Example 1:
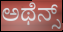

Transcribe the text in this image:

ಅಥೆನ್ಸ್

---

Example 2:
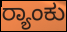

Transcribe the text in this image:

ರ್‍ಯಾಂಕು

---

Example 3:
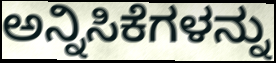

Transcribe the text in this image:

ಅನ್ನಿಸಿಕೆಗಳನ್ನು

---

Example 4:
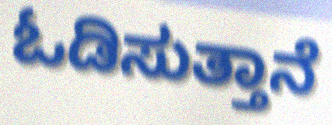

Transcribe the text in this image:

ಓಡಿಸುತ್ತಾನೆ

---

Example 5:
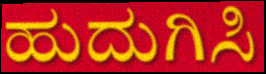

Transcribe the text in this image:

ಹುದುಗಿಸಿ